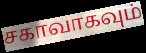
சகாவாகவும்